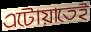
এটোয়াতেই